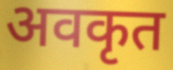
अवकृत